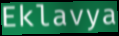
Eklavya